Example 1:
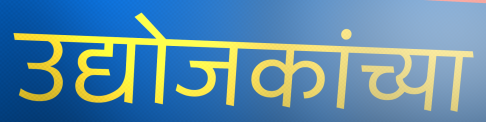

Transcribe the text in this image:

उद्योजकांच्या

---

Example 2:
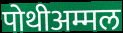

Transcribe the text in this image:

पोथीअम्मल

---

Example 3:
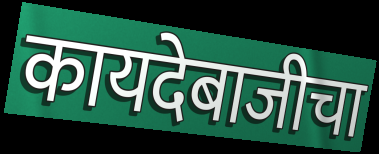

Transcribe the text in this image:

कायदेबाजीचा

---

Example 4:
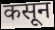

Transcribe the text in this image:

कसून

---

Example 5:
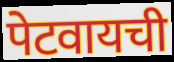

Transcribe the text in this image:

पेटवायची